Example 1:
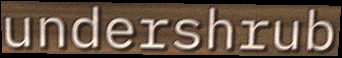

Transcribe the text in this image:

undershrub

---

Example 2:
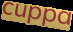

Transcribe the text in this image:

cuppa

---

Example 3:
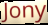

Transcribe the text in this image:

Jony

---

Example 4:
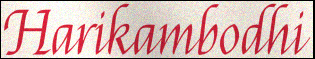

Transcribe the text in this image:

Harikambodhi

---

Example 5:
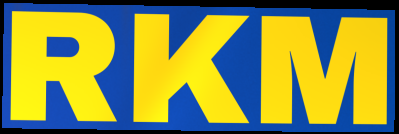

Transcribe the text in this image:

RKM